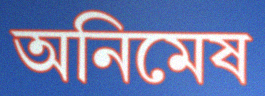
অনিমেষ